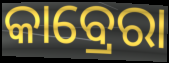
କାବ୍ରେରା